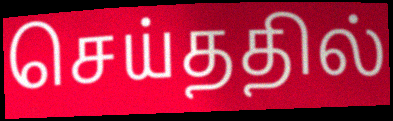
செய்ததில்